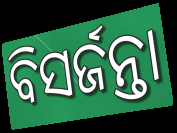
ବିସର୍ଜନ୍ତା